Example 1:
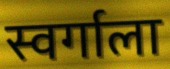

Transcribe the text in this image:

स्वर्गाला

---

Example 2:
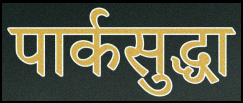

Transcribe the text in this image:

पार्कसुद्धा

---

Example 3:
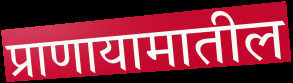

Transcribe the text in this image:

प्राणायामातील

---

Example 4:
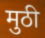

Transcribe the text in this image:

मुठी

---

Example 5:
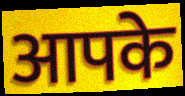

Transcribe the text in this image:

आपके